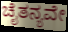
ಚೈತನ್ಯವೇ